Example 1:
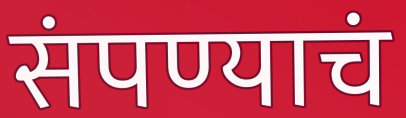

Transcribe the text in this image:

संपण्याचं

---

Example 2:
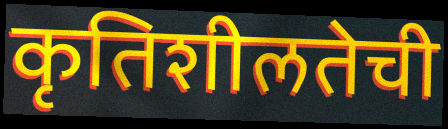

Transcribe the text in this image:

कृतिशीलतेची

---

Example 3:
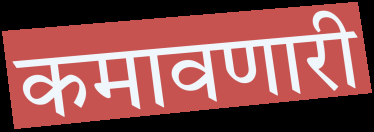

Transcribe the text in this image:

कमावणारी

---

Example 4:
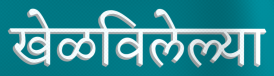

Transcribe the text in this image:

खेळविलेल्या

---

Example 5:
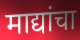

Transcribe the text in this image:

माद्यांचा